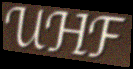
UHF